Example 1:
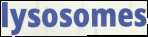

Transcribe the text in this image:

lysosomes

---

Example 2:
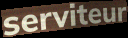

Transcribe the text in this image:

serviteur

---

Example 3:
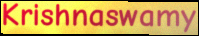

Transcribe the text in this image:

Krishnaswamy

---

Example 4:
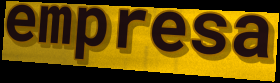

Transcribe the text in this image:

empresa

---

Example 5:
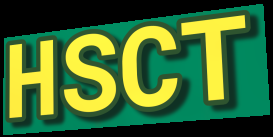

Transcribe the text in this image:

HSCT